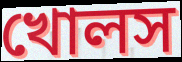
খোলস